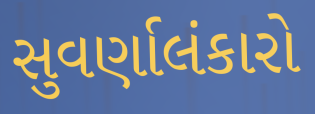
સુવર્ણાલંકારો